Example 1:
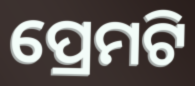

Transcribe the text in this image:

ପ୍ରେମଟି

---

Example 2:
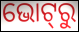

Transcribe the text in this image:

ଭୋଟ୍‌ରୁ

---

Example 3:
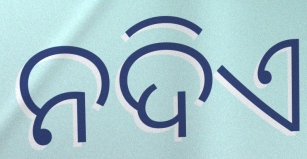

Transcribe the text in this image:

ନଦିଏ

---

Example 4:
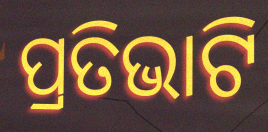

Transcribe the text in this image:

ପ୍ରତିଭାଟି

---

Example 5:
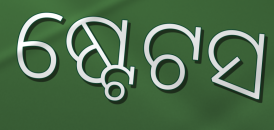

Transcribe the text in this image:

ଷ୍ଟେଟସ